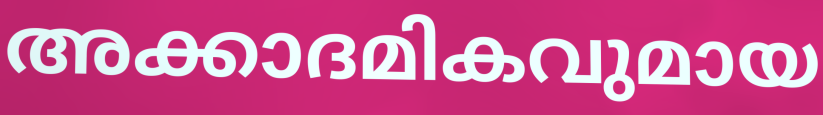
അക്കാദമികവുമായ